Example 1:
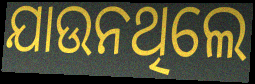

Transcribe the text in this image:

ଯାଉନଥିଲେ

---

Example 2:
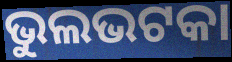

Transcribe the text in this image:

ଭୁଲଭଟକା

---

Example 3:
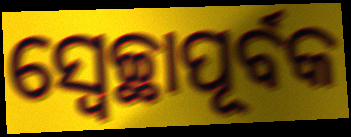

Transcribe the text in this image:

ସ୍ଵେଚ୍ଛାପୂର୍ବକ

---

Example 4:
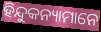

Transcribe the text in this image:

ହିନ୍ଦୁକନ୍ୟାମାନେ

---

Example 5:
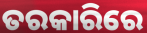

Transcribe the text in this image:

ତରକାରିରେ